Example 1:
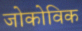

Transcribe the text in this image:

जोकोविक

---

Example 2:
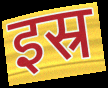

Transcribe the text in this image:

इस्र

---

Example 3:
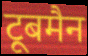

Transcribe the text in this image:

टूबमैन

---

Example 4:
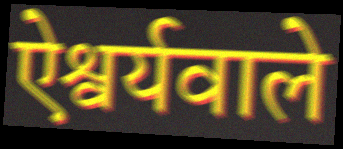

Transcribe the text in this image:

ऐश्वर्यवाले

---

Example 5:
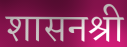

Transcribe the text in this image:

शासनश्री